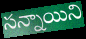
సన్నాయిని